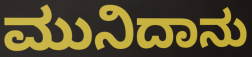
ಮುನಿದಾನು